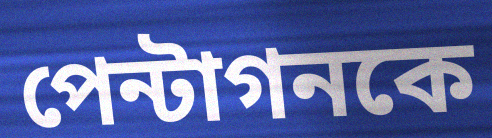
পেন্টাগনকে